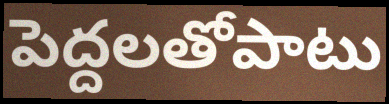
పెద్దలతోపాటు